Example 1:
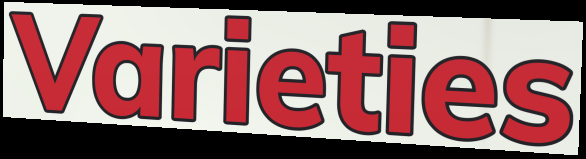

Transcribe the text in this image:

Varieties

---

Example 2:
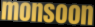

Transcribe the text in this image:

monsoon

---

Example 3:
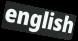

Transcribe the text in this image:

english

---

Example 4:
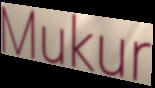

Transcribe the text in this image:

Mukur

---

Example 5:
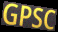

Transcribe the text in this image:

GPSC